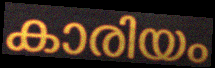
കാരിയം